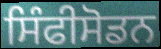
ਸਿੰਫੀਸੋਡਨ